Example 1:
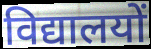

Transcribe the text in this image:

विद्यालयों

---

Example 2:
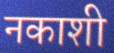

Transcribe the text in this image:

नकाशी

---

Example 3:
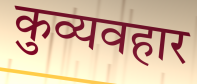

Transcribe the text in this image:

कुव्यवहार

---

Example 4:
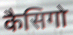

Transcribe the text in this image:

कैसिगो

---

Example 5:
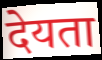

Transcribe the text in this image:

देयता